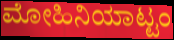
ಮೋಹಿನಿಯಾಟ್ಟಂ